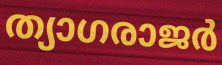
ത്യാഗരാജർ